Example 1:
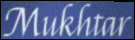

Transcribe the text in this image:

Mukhtar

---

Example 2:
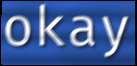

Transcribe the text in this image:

okay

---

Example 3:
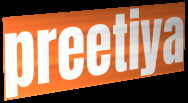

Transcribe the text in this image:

preetiya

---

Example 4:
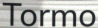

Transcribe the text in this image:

Tormo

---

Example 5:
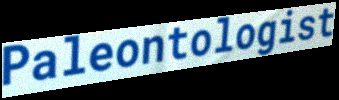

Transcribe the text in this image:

Paleontologist